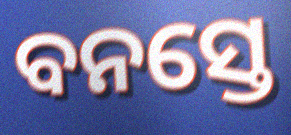
ବନସ୍ତେ